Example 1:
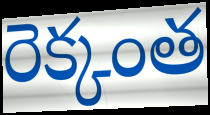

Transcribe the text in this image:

రెక్కంత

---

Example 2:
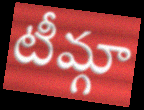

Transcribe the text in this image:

టీమ్గా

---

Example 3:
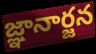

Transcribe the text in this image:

జ్ఞానార్జన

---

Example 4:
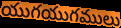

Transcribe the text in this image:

యుగయుగములు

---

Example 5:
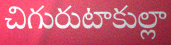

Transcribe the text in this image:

చిగురుటాకుల్లా